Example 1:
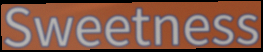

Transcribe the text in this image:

Sweetness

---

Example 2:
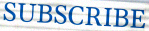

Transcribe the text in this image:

SUBSCRIBE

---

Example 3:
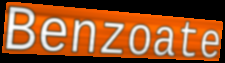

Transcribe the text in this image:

Benzoate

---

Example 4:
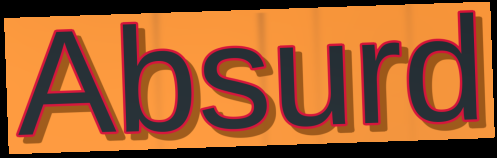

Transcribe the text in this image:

Absurd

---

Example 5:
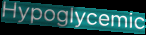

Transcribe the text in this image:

Hypoglycemic